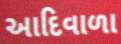
આદિવાળા